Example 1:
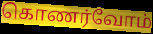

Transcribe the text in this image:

கொணர்வோம்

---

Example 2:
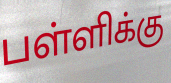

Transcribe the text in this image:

பள்ளிக்கு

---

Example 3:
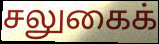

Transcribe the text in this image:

சலுகைக்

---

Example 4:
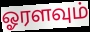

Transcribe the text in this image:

ஓரளவும்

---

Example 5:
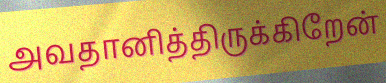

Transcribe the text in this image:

அவதானித்திருக்கிறேன்